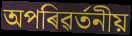
অপৰিৱৰ্তনীয়